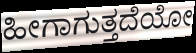
ಹೀಗಾಗುತ್ತದೆಯೋ